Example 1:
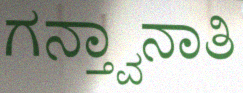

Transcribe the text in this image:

ಗನ್ತ್ವಾನಾತಿ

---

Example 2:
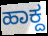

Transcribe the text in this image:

ಹಾಕ್ದ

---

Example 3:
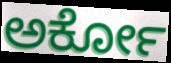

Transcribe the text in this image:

ಅರ್ಕೋ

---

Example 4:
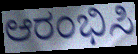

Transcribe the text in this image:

ಆರಂಭಿಸಿ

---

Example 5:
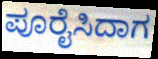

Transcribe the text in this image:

ಪೂರೈಸಿದಾಗ